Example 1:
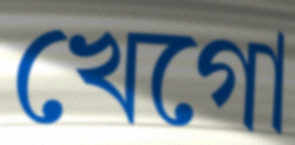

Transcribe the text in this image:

খেগো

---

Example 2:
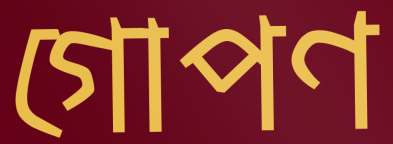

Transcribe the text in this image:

গোপণ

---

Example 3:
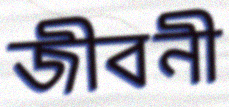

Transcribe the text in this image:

জীবনী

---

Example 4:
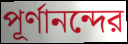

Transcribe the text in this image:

পূর্ণানন্দের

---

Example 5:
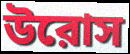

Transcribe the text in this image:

উরোস